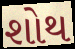
શોથ